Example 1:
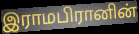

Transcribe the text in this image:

இராமபிரானின்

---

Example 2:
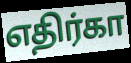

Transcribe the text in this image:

எதிர்கா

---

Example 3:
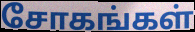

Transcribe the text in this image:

சோகங்கள்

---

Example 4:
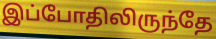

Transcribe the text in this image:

இப்போதிலிருந்தே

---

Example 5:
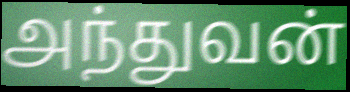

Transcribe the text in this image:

அந்துவன்